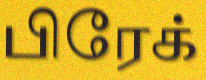
பிரேக்